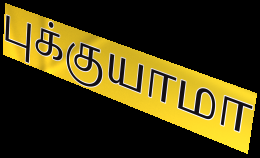
புக்குயாமா